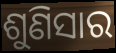
ଶୁଣିସାର